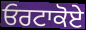
ਓਰਟਾਕੋਏ